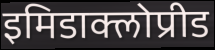
इमिडाक्लोप्रीड